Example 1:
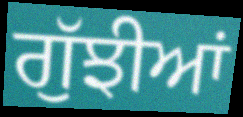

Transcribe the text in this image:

ਗੁੱਝੀਆਂ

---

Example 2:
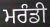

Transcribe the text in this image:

ਮਰੰਡੀ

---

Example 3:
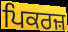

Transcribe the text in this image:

ਪਿਕਰਜ਼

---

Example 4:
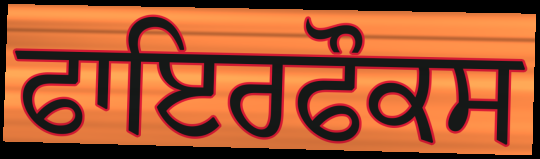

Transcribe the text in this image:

ਫਾਇਰਫੌਕਸ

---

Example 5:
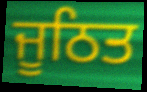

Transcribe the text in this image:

ਜੂਠਿਤ